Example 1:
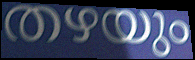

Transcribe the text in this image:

തഴയും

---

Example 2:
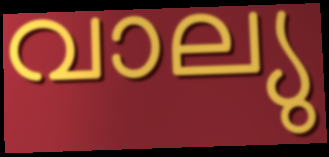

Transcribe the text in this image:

വാല്യു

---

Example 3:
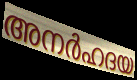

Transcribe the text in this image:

അനർഹദയ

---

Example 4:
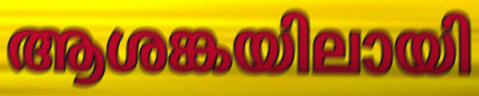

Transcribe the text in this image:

ആശങ്കയിലായി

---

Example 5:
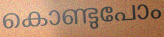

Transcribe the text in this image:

കൊണ്ടുപോം